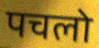
पचलो